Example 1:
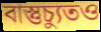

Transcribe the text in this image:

বাস্তুচ্যুতও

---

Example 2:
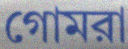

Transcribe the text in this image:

গোমরা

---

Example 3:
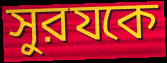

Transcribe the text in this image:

সুরযকে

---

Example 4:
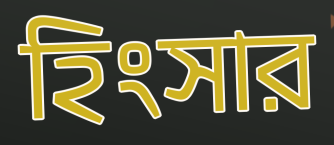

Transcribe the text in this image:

হিংসার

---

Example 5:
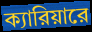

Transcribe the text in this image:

ক্যারিয়ারে